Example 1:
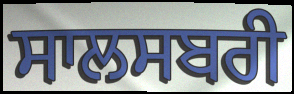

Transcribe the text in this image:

ਸਾਲਸਬਰੀ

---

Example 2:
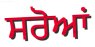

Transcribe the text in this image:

ਸਰੋਆਂ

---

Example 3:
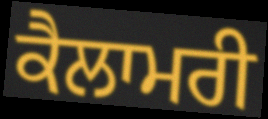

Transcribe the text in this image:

ਕੈਲਾਮਰੀ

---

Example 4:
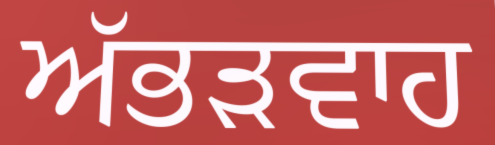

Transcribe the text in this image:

ਅੱਭੜਵਾਹ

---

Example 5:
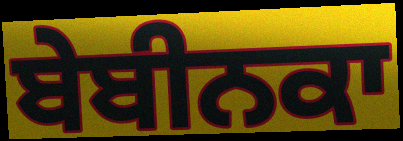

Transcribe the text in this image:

ਬੇਬੀਨਕਾ